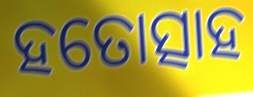
ହତୋତ୍ସାହ